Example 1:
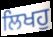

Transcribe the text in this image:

ਲਿਖਹੁ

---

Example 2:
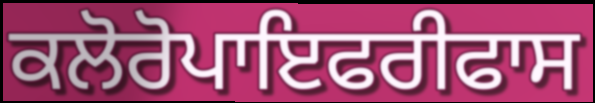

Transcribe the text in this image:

ਕਲੋਰੋਪਾਇਫਰੀਫਾਸ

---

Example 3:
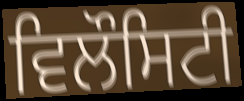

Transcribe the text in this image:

ਵਿਲੌਸਿਟੀ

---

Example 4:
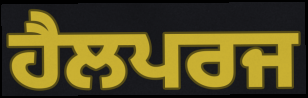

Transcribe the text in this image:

ਹੈਲਪਰਜ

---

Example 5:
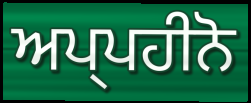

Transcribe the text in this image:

ਅਪ੍ਪਹੀਨੋ